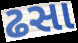
ઢસા